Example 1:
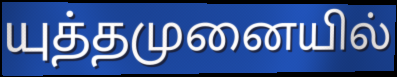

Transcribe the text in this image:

யுத்தமுனையில்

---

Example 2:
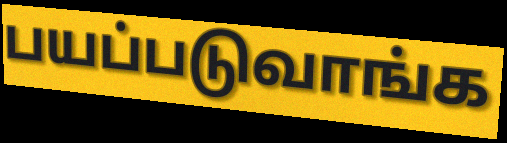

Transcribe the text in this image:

பயப்படுவாங்க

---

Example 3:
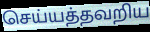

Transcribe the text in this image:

செய்யத்தவறிய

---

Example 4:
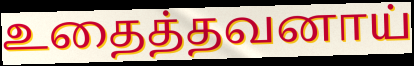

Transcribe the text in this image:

உதைத்தவனாய்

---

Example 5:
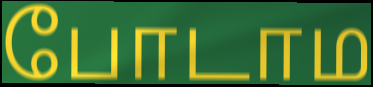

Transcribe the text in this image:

போடாம